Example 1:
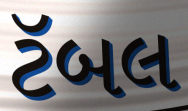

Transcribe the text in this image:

ટૅબલ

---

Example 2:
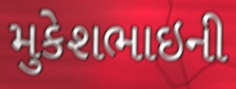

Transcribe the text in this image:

મુકેશભાઇની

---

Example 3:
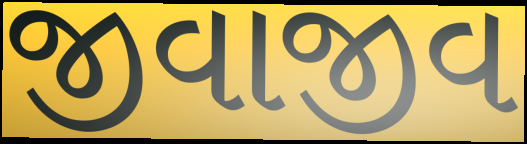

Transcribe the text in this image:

જીવાજીવ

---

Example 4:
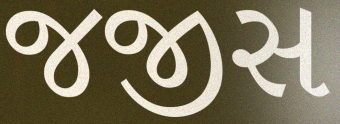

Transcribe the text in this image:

જજીસ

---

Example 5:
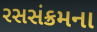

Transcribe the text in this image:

રસસંક્રમના